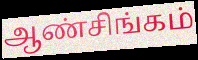
ஆண்சிங்கம்